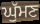
ਘੁੱਮਣ